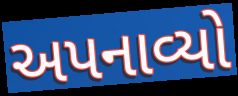
અપનાવ્યો